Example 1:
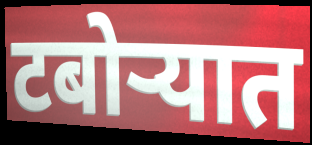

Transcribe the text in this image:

टबोऱ्यात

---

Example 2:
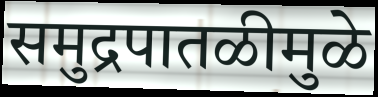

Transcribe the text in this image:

समुद्रपातळीमुळे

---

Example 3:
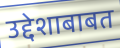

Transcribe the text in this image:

उद्देशाबाबत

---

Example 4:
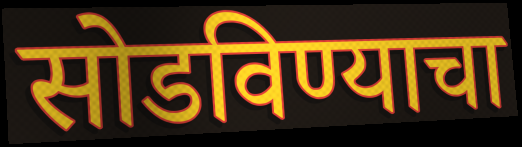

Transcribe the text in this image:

सोडविण्याचा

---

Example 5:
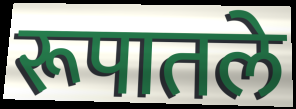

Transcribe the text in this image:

रूपातले